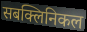
सबक्लिनिकल